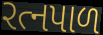
રત્નપાળ